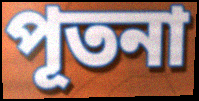
পূতনা